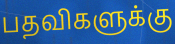
பதவிகளுக்கு